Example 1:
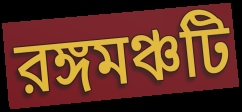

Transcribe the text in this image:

রঙ্গমঞ্চটি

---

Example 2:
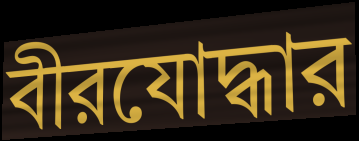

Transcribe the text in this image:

বীরযোদ্ধার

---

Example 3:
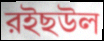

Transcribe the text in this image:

রইছউল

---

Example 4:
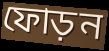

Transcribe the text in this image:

ফোড়ন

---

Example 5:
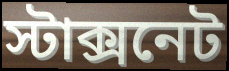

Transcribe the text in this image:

স্টাক্সনেট